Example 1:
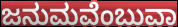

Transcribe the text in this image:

ಜನುಮವೆಂಬುವಾ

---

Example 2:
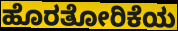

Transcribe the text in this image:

ಹೊರತೋರಿಕೆಯ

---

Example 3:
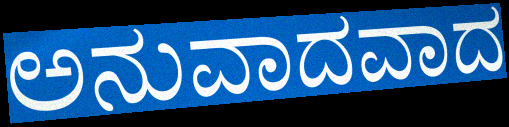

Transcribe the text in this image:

ಅನುವಾದವಾದ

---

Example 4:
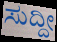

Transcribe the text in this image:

ಸುದ್ದೀ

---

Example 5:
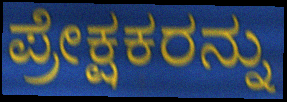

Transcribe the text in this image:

ಪ್ರೇಕ್ಷಕರನ್ನು